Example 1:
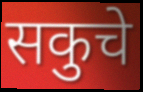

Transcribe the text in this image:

सकुचे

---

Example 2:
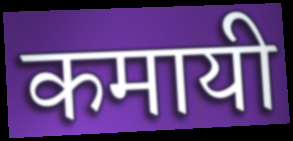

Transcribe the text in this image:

कमायी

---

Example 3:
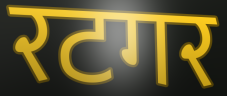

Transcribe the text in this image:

रटगर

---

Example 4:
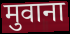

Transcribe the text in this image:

मुवाना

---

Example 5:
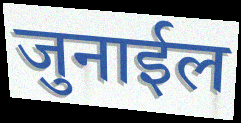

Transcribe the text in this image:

जुनाईल